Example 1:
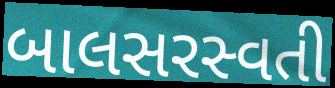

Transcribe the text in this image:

બાલસરસ્વતી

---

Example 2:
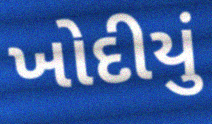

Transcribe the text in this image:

ખોદીયું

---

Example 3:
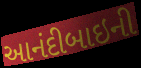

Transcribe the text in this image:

આનંદીબાઇની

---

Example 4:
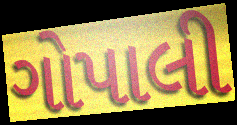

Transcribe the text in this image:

ગોપાલી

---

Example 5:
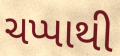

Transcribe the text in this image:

ચપ્પાથી